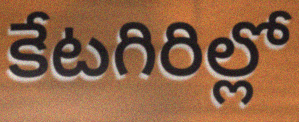
కేటగిరిల్లో